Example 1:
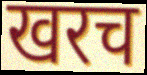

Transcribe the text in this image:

खरच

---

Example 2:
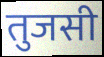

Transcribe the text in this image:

तुजसी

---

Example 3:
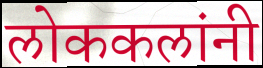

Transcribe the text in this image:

लोककलांनी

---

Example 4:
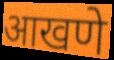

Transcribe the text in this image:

आखणे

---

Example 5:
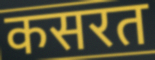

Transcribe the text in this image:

कसरत